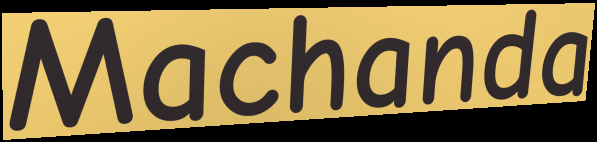
Machanda